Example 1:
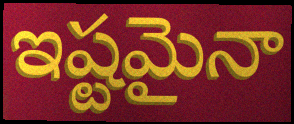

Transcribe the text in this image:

ఇష్టమైనా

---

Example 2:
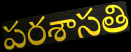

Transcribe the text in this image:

పరశాసతి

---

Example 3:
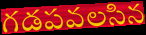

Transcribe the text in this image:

గడపవలసిన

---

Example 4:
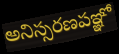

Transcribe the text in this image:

అనిస్సరణపఞ్ఞో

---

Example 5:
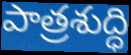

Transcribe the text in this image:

పాత్రశుద్ధి